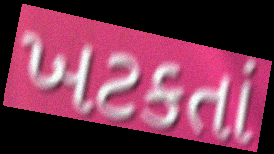
ખટકતાં